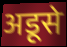
अडूसे